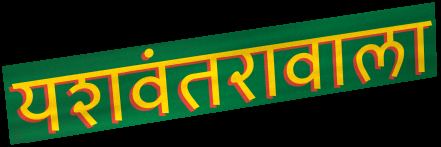
यशवंतरावाला